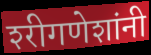
श्रीगणेशांनी